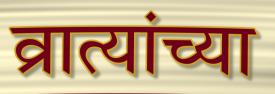
व्रात्यांच्या